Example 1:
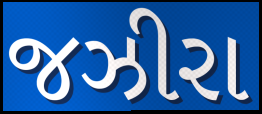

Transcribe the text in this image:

જઝીરા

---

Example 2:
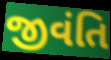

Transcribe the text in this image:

જીવંતિ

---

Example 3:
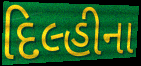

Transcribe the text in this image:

દિલ્હીના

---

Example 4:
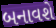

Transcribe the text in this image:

બનાવશે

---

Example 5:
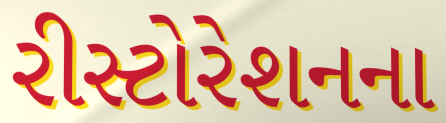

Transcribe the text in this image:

રીસ્ટોરેશનના